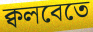
ক্বলবেতে